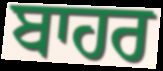
ਬਾਹਰ